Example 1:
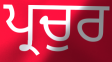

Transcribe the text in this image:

ਪ੍ਰਚੁਰ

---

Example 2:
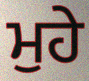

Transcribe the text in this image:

ਮੁਹੇ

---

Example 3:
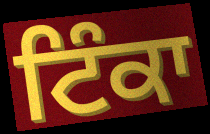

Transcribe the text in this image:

ਟਿੰਕਾ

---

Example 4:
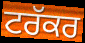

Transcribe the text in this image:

ਟਰੱਕਰ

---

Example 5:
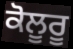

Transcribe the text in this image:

ਕੋਲੂਰੂ